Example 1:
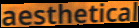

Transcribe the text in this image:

aesthetical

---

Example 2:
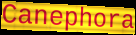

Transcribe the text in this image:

Canephora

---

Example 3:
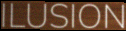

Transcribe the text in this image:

ILUSION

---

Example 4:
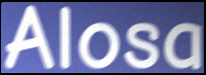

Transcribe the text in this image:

Alosa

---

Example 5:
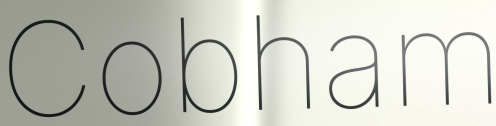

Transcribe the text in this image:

Cobham